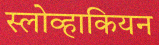
स्लोव्हाकियन